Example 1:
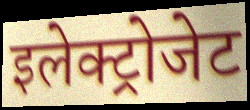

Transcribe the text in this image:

इलेक्ट्रोजेट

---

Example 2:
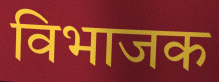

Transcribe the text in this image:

विभाजक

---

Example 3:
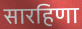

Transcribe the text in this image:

सारहिणा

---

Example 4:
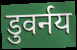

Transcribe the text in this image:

डुवर्नय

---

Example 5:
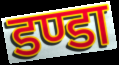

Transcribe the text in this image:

डण्डा